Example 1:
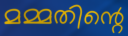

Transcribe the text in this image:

മമ്മതിന്റെ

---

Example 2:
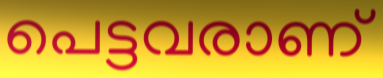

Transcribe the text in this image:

പെട്ടവരാണ്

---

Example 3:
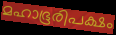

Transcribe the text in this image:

മഹാഭൂരിപക്ഷം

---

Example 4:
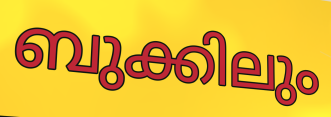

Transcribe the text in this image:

ബുക്കിലും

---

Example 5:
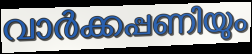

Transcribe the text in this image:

വാർക്കപ്പണിയും